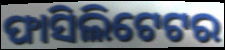
ଫାସିଲିଟେଟର